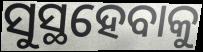
ସୁସ୍ଥହେବାକୁ